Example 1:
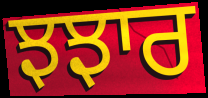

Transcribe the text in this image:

ਝਝਾਰ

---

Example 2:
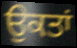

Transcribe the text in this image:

ਉਕਤਾਂ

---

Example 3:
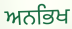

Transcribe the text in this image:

ਅਨਭਿਖ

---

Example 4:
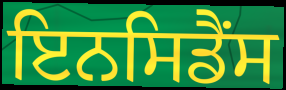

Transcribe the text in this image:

ਇਨਸਿਡੈਂਸ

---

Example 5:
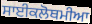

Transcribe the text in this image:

ਸਾਈਕਲੋਥਮੀਆ